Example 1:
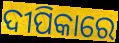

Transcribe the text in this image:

ଦୀପିକାରେ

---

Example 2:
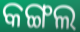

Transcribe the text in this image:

କଙ୍ଗଲ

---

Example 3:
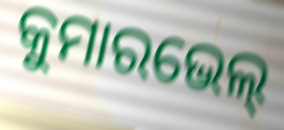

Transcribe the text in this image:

କୁମାରଭେଲ୍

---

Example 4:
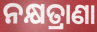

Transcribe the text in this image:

ନକ୍ଷତ୍ରାଣା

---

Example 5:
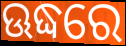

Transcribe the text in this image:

ଊଦ୍ଧରେ